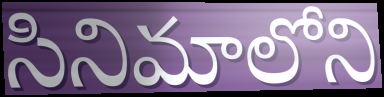
సినిమాలోని